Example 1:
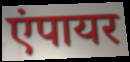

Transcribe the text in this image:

एंपायर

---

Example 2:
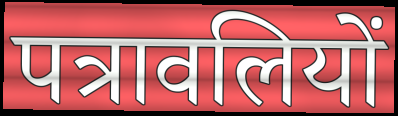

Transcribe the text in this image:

पत्रावलियों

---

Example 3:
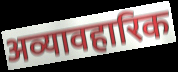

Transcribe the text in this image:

अव्यावहारिक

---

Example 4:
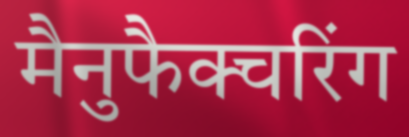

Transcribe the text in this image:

मैनुफैक्चरिंग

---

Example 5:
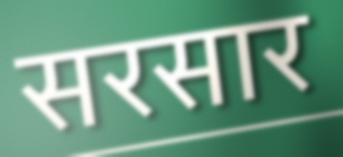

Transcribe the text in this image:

सरसार